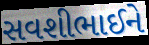
સવશીભાઈને